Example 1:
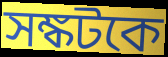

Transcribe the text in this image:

সঙ্কটকে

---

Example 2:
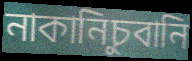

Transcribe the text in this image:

নাকানিচুবানি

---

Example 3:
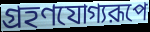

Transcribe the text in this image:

গ্রহণযোগ্যরূপে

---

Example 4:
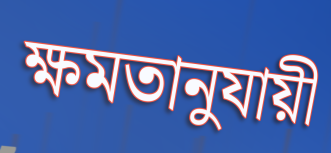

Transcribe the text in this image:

ক্ষমতানুযায়ী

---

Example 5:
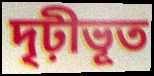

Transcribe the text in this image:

দৃঢ়ীভূত